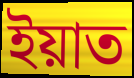
ইয়াত